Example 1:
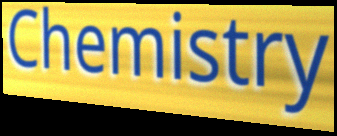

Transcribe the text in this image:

Chemistry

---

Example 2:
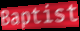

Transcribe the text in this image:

Baptist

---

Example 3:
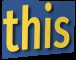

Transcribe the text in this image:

this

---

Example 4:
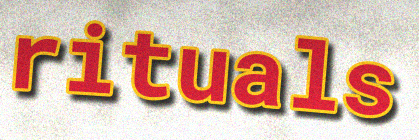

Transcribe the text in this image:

rituals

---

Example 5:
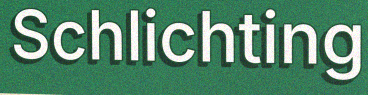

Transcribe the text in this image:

Schlichting